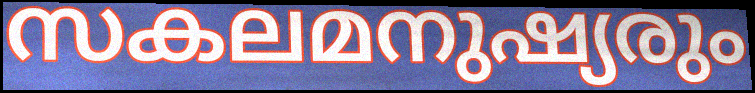
സകലമനുഷ്യരും